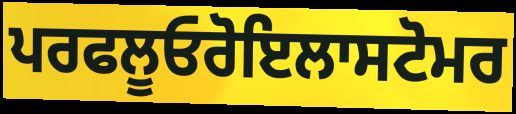
ਪਰਫਲੂਓਰੋਇਲਾਸਟੋਮਰ